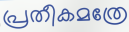
പ്രതീകമത്രേ